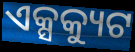
ଏକ୍ସକ୍ୟୁଟ